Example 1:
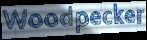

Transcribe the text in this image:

Woodpecker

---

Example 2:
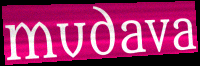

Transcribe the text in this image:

mudava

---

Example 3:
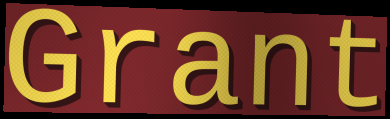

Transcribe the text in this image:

Grant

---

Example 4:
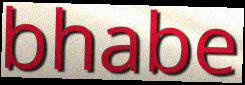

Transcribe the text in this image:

bhabe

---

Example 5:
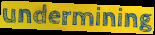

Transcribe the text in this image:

undermining